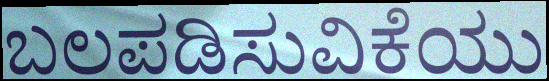
ಬಲಪಡಿಸುವಿಕೆಯು